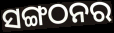
ସଙ୍ଗଠନର